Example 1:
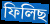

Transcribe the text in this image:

ফিলিছ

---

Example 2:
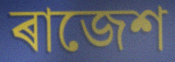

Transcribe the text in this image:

ৰাজেশ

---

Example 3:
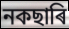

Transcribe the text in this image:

নকছাৰি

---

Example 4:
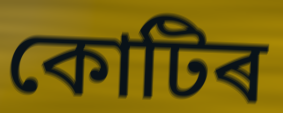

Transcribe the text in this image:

কোটিৰ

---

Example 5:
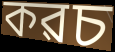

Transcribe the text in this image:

কৱচ